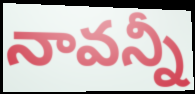
నావన్నీ